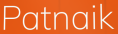
Patnaik